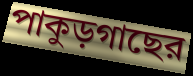
পাকুড়গাছের